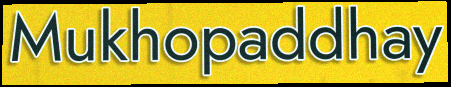
Mukhopaddhay